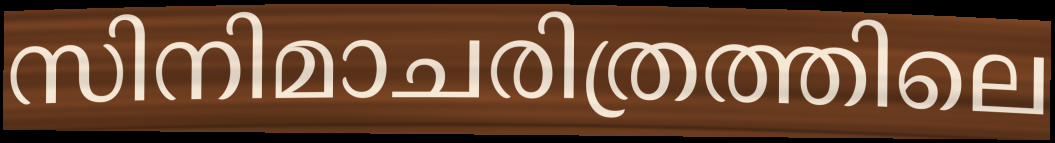
സിനിമാചരിത്രത്തിലെ